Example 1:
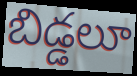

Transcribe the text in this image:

బిడ్డలూ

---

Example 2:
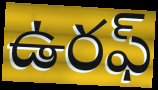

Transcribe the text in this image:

ఉరఫ్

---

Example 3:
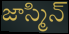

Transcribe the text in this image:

జాస్మిన్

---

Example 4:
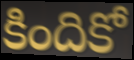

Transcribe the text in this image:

కిందికో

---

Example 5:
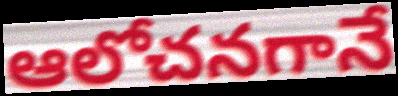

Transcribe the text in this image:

ఆలోచనగానే